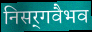
निसर्गवैभव